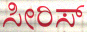
ಸೀರಿಸ್